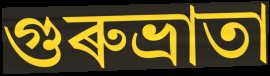
গুৰুভ্ৰাতা